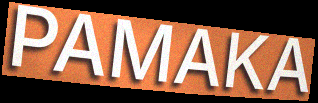
PAMAKA